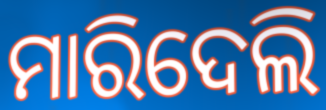
ମାରିଦେଲି